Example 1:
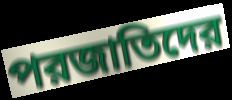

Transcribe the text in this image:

পরজাতিদের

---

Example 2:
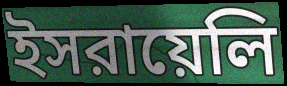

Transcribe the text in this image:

ইসরায়েলি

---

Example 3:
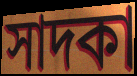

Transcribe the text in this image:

সাদকা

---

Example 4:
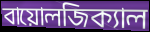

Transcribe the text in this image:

বায়োলজিক্যাল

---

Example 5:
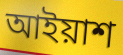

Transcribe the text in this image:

আইয়াশ